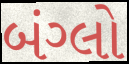
બંગ્લો